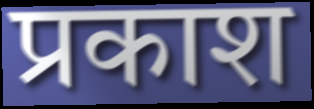
प्रकाश